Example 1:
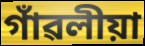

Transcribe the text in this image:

গাঁৱলীয়া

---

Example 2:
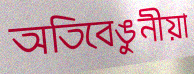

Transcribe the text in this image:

অতিবেঙুনীয়া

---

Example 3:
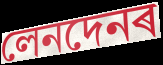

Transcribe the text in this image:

লেনদেনৰ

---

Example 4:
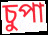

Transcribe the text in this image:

চুপা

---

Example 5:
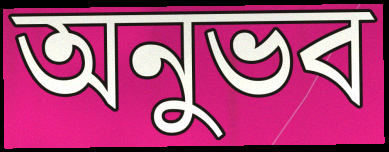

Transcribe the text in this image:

অনুভব